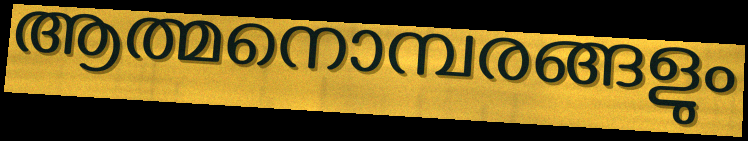
ആത്മനൊമ്പരങ്ങളും